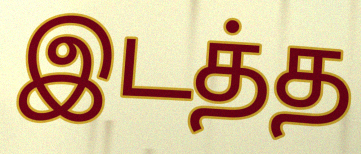
இடத்த